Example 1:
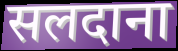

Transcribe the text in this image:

सलदाना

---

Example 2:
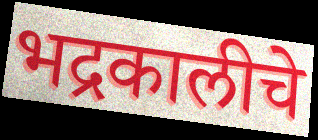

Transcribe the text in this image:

भद्रकालीचे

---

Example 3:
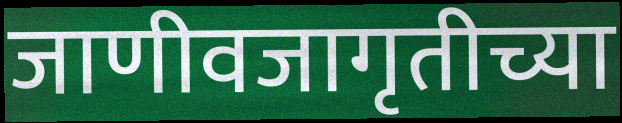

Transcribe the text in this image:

जाणीवजागृतीच्या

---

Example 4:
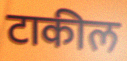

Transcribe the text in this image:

टाकील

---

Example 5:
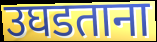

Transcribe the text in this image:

उघडताना